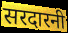
सरदारनी